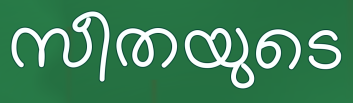
സീതയുടെ